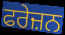
ਫਰੇਜ਼ਨ